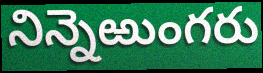
నిన్నెఱుంగరు